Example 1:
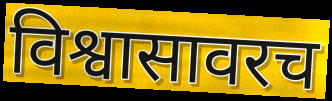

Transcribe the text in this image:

विश्वासावरच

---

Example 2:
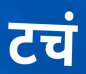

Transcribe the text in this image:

टचं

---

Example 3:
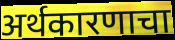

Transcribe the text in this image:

अर्थकारणाचा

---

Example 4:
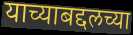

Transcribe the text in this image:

याच्याबद्दलच्या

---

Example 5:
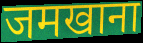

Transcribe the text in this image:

जमखाना